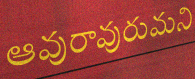
ఆవురావురుమని